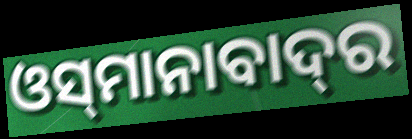
ଓସ୍‌ମାନାବାଦ୍‌ର